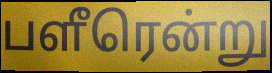
பளீரென்று